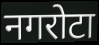
नगरोटा